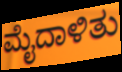
ಮೈದಾಳಿತು